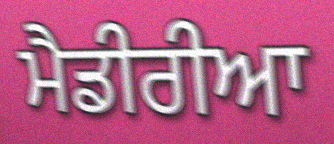
ਮੈਡੀਰੀਆ